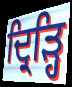
ਦ੍ਰਿੜ੍ਹਿ